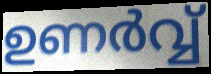
ഉണർവ്വ്